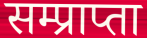
सम्प्राप्ता